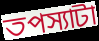
তপস্যাটা